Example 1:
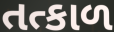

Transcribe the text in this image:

તત્કાળ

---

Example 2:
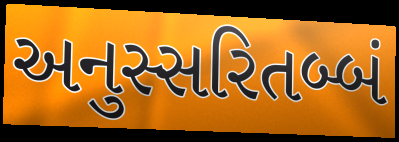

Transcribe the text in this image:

અનુસ્સરિતબ્બં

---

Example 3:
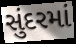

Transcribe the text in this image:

સુંદરમાં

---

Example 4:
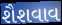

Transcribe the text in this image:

શૈશવાવ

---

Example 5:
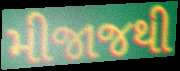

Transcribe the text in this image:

મીજાજથી